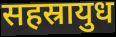
सहस्रायुध